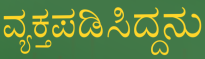
ವ್ಯಕ್ತಪಡಿಸಿದ್ದನು